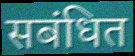
सबंधित